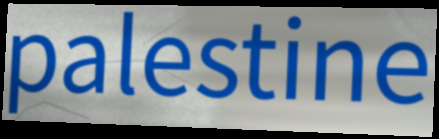
palestine